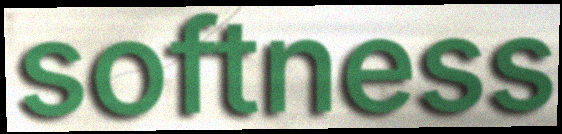
softness